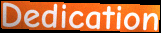
Dedication